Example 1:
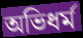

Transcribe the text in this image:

অভিধর্ম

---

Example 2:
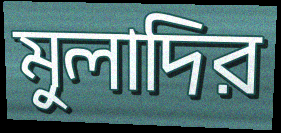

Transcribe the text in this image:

মুলাদির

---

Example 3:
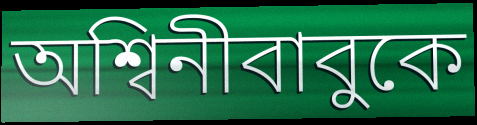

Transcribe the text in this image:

অশ্বিনীবাবুকে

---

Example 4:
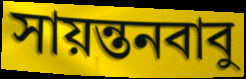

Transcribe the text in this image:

সায়ন্তনবাবু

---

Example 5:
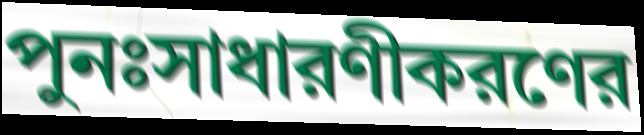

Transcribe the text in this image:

পুনঃসাধারণীকরণের